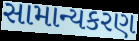
સામાન્યકરણ